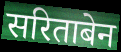
सरिताबेन